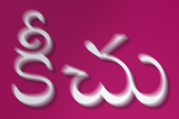
కీచు